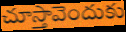
చూస్తావెందుకు